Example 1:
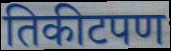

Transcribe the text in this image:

तिकीटपण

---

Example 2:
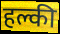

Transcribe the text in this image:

हल्की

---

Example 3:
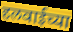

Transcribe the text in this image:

हलवाईच्या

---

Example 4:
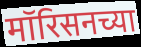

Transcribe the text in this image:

मॉरिसनच्या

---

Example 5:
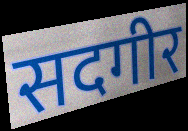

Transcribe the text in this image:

सदगीर